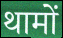
थामों